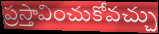
ప్రస్తావించుకోవచ్చు